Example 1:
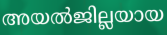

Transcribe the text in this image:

അയൽജില്ലയായ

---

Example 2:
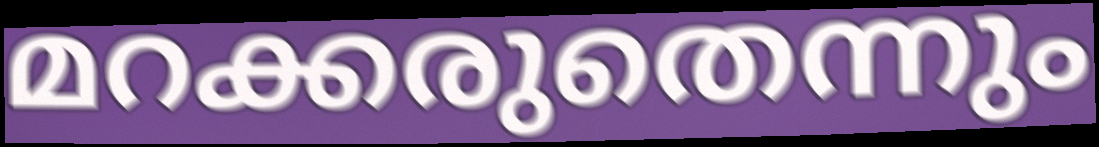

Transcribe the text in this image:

മറക്കരുതെന്നും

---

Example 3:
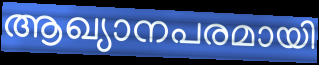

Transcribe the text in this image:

ആഖ്യാനപരമായി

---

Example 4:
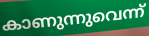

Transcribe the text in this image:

കാണുന്നുവെന്ന്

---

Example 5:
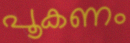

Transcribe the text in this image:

പൂകണം